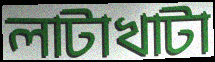
লাটাখাটা